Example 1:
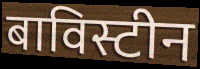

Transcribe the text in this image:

बाविस्टीन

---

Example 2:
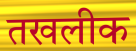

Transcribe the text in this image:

तखलीक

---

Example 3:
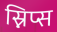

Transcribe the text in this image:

स्निप्स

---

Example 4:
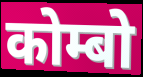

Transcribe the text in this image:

कोम्बो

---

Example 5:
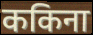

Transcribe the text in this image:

ककिना